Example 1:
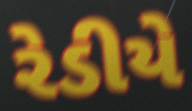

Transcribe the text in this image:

રેડીયે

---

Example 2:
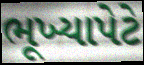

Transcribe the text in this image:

ભૂખ્યાપેટે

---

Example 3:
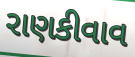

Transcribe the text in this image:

રાણકીવાવ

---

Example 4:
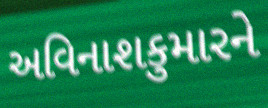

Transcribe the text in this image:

અવિનાશકુમારને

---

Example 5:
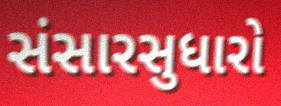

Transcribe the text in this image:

સંસારસુધારો